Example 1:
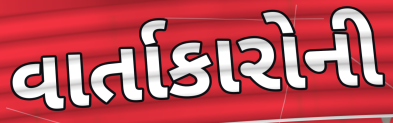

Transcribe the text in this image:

વાર્તાકારોની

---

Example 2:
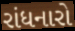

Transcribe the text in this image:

રાંધનારો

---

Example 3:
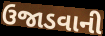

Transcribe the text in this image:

ઉજાડવાની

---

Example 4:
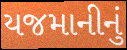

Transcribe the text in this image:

યજમાનીનું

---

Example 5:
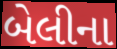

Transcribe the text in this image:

બેલીના